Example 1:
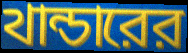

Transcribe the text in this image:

থান্ডারের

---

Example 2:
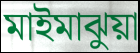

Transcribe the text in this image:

মাইমাঝুয়া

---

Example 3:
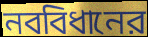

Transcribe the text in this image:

নববিধানের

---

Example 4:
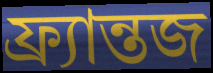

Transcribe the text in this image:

ফ্র্যান্তজ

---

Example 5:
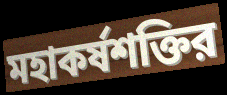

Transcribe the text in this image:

মহাকর্ষশক্তির